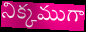
నిక్కముగా